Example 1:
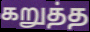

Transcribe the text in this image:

கறுத்த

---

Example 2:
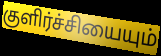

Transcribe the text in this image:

குளிர்ச்சியையும்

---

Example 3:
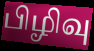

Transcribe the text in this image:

பிழிவு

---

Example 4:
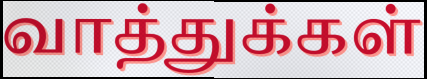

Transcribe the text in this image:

வாத்துக்கள்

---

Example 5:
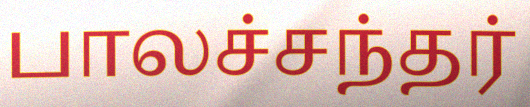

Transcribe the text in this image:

பாலச்சந்தர்